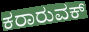
ಕರಾರುವಕ್